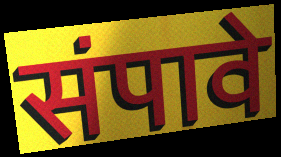
संपावे